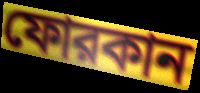
ফোরকান